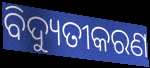
ବିଦ୍ୟୁତୀକରଣ